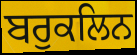
ਬਰੁਕਲਿਨ